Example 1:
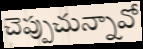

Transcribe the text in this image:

చెప్పుచున్నావో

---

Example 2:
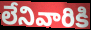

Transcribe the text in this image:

లేనివారికి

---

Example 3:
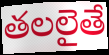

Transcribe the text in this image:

తలలైతే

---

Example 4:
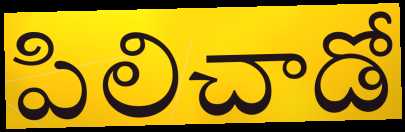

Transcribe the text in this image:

పిలిచాడో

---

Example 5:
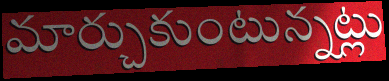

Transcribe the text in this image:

మార్చుకుంటున్నట్లు